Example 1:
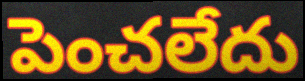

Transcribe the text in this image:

పెంచలేదు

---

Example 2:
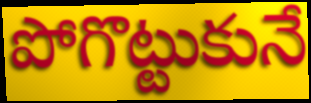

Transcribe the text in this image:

పోగొట్టుకునే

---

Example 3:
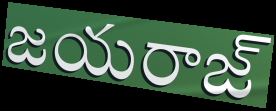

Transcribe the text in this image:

జయరాజ్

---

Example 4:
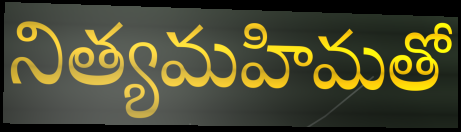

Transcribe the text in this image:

నిత్యమహిమతో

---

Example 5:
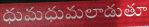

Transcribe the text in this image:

ధుమధుమలాడుతూ